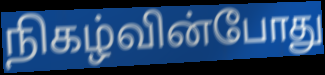
நிகழ்வின்போது